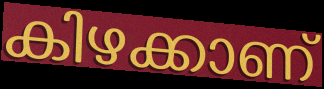
കിഴക്കാണ്